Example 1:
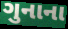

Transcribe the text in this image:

ગુનાના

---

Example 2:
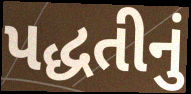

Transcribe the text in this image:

પદ્ધતીનું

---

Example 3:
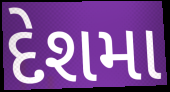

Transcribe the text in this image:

દેશમા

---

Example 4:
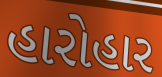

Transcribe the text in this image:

હારોહાર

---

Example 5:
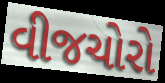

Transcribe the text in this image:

વીજચોરો